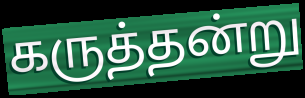
கருத்தன்று